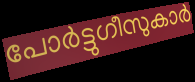
പോർട്ടുഗീസുകാർ